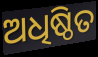
ଅଧିଷ୍ଠିତ